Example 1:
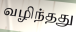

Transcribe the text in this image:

வழிந்தது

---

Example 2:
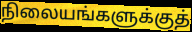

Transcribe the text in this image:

நிலையங்களுக்குத்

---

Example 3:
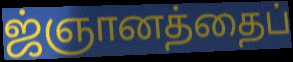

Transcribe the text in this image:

ஜ்ஞானத்தைப்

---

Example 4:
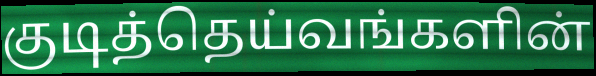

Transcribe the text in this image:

குடித்தெய்வங்களின்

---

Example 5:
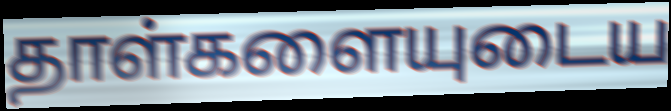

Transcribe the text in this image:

தாள்களையுடைய